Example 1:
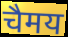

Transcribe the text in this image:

चैमय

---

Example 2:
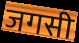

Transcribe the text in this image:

जगसी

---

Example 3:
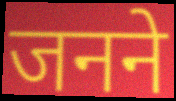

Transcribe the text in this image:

जनने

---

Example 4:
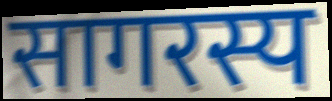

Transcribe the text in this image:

सागरस्य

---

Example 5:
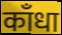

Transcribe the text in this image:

काँधा